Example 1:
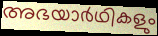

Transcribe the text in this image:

അഭയാർഥികളും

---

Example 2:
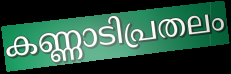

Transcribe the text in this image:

കണ്ണാടിപ്രതലം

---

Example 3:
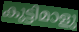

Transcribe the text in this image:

കുട്ടിമാളു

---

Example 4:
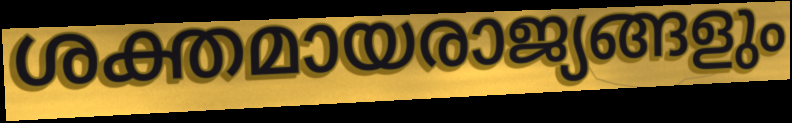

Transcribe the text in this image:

ശക്തമായരാജ്യങ്ങളും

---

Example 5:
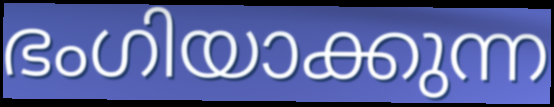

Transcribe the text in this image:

ഭംഗിയാക്കുന്ന